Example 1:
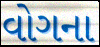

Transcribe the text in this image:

વોગના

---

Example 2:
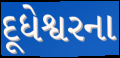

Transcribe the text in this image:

દૂધેશ્વરના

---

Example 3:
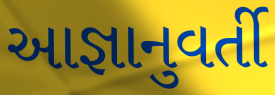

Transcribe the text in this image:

આજ્ઞાનુવર્તી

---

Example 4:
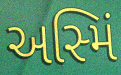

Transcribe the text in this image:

અસ્મિં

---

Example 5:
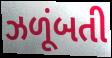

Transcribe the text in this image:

ઝળૂંબતી